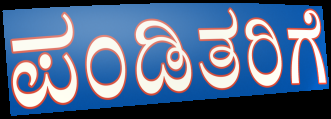
ಪಂಡಿತರಿಗೆ